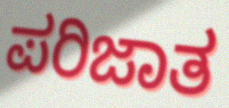
ಪರಿಜಾತ